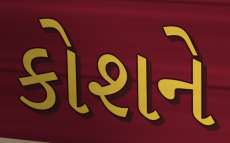
કોશને